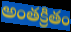
అంతక్రితం